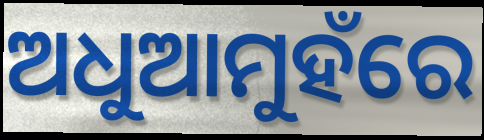
ଅଧୁଆମୁହଁରେ